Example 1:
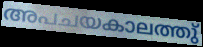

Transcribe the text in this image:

അപചയകാലത്തു്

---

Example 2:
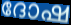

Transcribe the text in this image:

ദോഷ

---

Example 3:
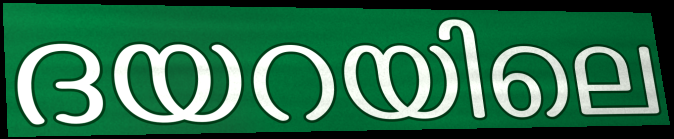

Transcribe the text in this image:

ദയറയിലെ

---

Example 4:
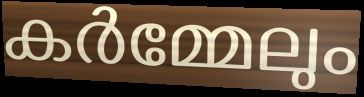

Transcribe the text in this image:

കർമ്മേലും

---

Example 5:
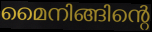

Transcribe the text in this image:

മൈനിങ്ങിന്റെ